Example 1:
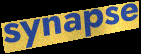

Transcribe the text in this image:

synapse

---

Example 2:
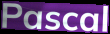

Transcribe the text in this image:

Pascal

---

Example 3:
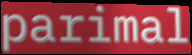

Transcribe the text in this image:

parimal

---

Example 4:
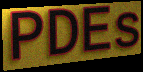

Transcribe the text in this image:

PDEs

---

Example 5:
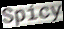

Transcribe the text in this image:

Spicy